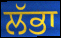
ਲੱਭਾ